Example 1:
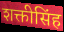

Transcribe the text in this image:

शक्तीसिंह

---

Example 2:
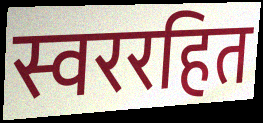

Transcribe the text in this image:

स्वररहित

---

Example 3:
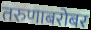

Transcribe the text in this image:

तरुणाबरोबर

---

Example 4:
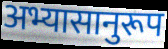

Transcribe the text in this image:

अभ्यासानुरूप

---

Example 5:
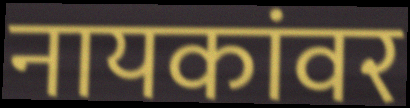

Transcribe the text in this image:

नायकांवर